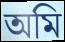
অমি